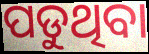
ପଡୁଥିବା